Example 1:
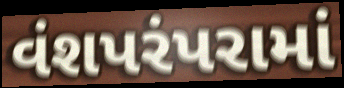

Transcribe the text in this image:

વંશપરંપરામાં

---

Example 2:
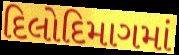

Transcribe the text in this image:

દિલોદિમાગમાં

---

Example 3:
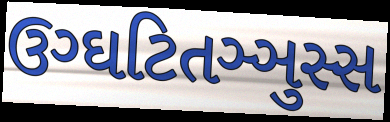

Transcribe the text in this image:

ઉગ્ઘટિતઞ્ઞુસ્સ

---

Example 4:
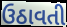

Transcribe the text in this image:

ઉઠાવતી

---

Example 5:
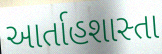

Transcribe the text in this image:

આર્તાહશાસ્તા